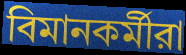
বিমানকর্মীরা